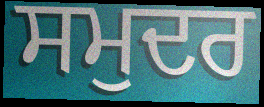
ਸਮੁਦਰ